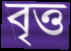
বৃত্ত